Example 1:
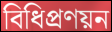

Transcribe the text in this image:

বিধিপ্রণয়ন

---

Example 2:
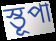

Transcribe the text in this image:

স্তূপা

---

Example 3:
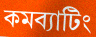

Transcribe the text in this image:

কমব্যাটিং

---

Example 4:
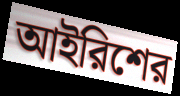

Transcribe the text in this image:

আইরিশের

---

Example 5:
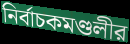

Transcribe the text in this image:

নির্বাচকমণ্ডলীর